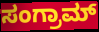
ಸಂಗ್ರಾಮ್